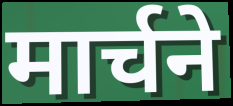
मार्चने